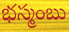
భస్మంబు